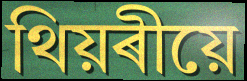
থিয়ৰীয়ে